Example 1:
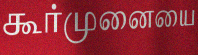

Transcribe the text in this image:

கூர்முனையை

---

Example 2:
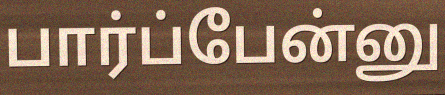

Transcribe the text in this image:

பார்ப்பேன்னு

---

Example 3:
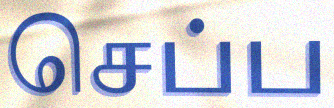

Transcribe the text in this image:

செப்ப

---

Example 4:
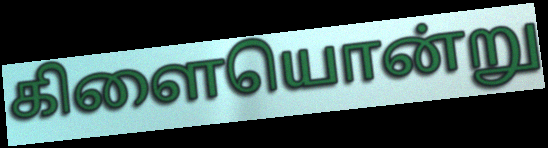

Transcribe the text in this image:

கிளையொன்று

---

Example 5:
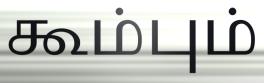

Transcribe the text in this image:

கூம்பும்